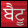
ਬੈਟੂ